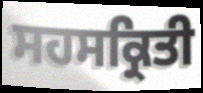
ਸਹਸਕ੍ਰਿਤੀ